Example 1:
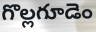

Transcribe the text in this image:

గొల్లగూడెం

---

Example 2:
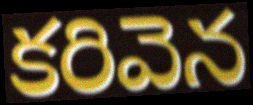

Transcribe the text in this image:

కరివెన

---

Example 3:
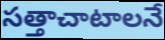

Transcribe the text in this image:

సత్తాచాటాలనే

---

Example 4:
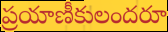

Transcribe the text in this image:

ప్రయాణీకులందరూ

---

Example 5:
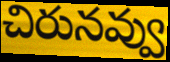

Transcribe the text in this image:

చిరునవ్వు